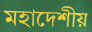
মহাদেশীয়